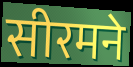
सीरमने